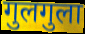
गुलगुला